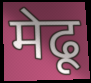
मेढू